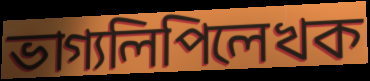
ভাগ্যলিপিলেখক